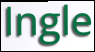
Ingle